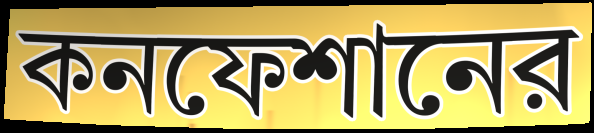
কনফেশানের